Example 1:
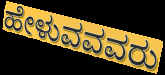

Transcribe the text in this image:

ಹೇಳುವವವರು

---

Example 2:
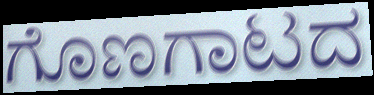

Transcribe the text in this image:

ಗೊಣಗಾಟದ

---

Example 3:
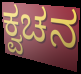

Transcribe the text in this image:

ಕ್ವಚನ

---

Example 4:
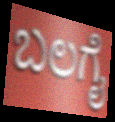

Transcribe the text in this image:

ಬಲಗೈ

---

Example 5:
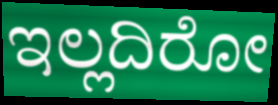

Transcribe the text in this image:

ಇಲ್ಲದಿರೋ